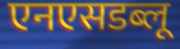
एनएसडब्लू